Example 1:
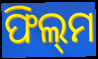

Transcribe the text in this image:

ଫିଲ୍‌ମ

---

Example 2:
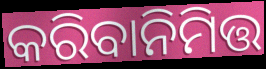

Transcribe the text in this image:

କରିବାନିମିତ୍ତ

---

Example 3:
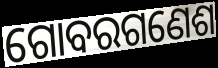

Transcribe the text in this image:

ଗୋବରଗଣେଶ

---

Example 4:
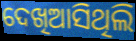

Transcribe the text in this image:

ଦେଖିଆସିଥିଲି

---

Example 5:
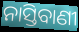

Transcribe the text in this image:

ନାସ୍ତିବାଣୀ